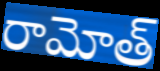
రామోత్